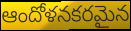
ఆందోళనకరమైన